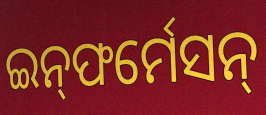
ଇନ୍‍ଫର୍ମେସନ୍